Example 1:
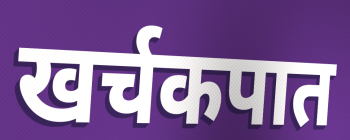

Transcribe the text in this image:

खर्चकपात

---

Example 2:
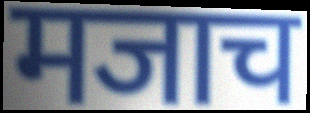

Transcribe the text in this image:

मजाच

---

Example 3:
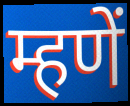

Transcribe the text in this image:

म्हणें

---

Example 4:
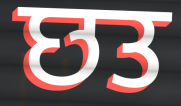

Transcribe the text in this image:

छउ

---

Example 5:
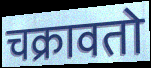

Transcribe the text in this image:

चक्रावतो